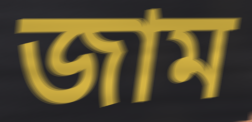
জাম